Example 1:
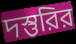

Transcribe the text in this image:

দস্তুরির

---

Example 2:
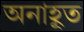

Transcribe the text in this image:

অনাহূত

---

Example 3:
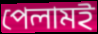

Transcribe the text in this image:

পেলামই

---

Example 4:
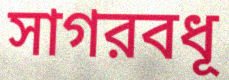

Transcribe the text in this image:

সাগরবধূ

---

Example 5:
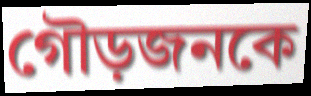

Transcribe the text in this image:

গৌড়জনকে